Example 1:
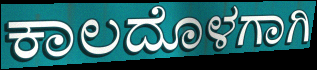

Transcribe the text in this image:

ಕಾಲದೊಳಗಾಗಿ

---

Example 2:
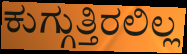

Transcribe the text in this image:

ಕುಗ್ಗುತ್ತಿರಲಿಲ್ಲ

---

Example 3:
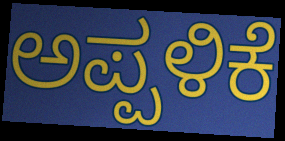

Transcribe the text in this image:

ಅಪ್ಪಳಿಕೆ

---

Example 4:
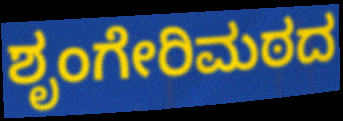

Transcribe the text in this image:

ಶೃಂಗೇರಿಮಠದ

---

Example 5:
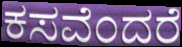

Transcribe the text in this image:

ಕಸವೆಂದರೆ